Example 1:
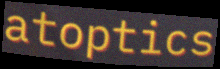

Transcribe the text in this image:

atoptics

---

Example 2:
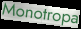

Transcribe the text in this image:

Monotropa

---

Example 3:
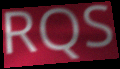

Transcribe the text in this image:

RQS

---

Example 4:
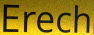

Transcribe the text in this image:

Erech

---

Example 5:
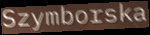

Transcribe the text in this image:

Szymborska